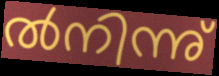
ൽനിന്നു്